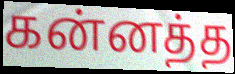
கன்னத்த